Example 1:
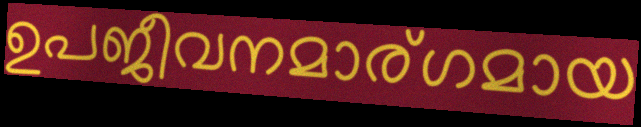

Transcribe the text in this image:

ഉപജീവനമാര്ഗമായ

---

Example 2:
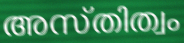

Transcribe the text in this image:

അസ്‌തിത്വം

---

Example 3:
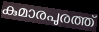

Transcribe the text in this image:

കുമാരപുരത്ത്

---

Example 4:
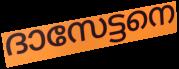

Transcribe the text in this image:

ദാസേട്ടനെ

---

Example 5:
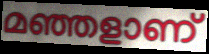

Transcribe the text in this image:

മഞ്ഞളാണ്